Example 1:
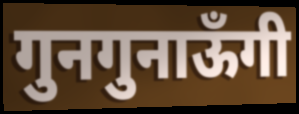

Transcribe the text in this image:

गुनगुनाऊँगी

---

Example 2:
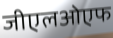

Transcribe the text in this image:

जीएलओएफ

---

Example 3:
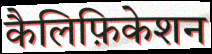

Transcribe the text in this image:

कैलिफ़िकेशन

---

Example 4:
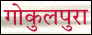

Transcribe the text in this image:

गोकुलपुरा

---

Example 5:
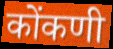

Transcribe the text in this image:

कोंकणी